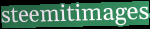
steemitimages